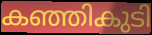
കഞ്ഞികുടി